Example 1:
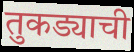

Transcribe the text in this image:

तुकड्याची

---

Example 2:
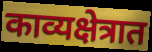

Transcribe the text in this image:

काव्यक्षेत्रात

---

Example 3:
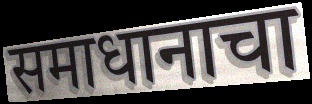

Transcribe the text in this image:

समाधानाचा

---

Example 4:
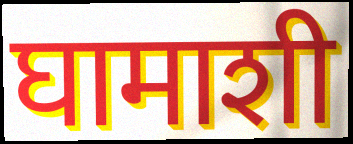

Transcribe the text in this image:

घामाशी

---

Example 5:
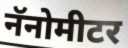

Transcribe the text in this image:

नॅनोमीटर